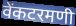
वेंकटरमणी